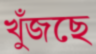
খুঁজছে